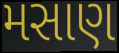
મસાણ